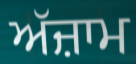
ਅੱਜ਼ਾਮ